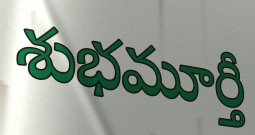
శుభమూర్తీ